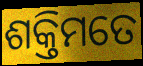
ଶକ୍ତିମତେ